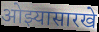
ओझ्यासारखे